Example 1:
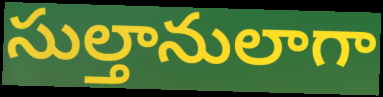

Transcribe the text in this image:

సుల్తానులాగా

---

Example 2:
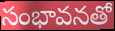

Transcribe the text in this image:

సంభావనతో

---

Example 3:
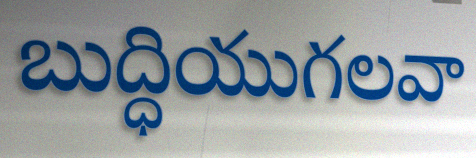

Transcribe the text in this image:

బుద్ధియుగలవా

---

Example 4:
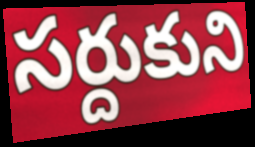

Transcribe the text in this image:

సర్దుకుని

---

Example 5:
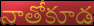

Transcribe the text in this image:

నాతోకూడ